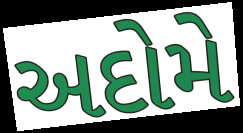
અદોમે